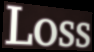
Loss